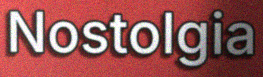
Nostolgia